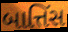
બાત્તિંસ